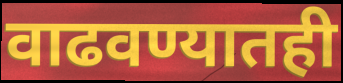
वाढवण्यातही